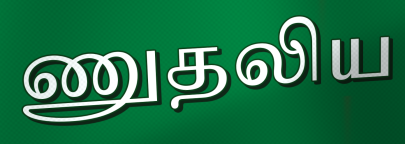
ணுதலிய